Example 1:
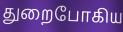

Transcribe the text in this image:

துறைபோகிய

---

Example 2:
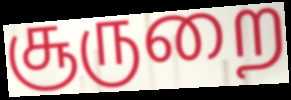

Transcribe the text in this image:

சூருறை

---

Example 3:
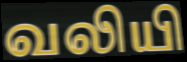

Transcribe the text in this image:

வலியி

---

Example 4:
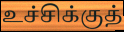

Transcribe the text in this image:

உச்சிக்குத்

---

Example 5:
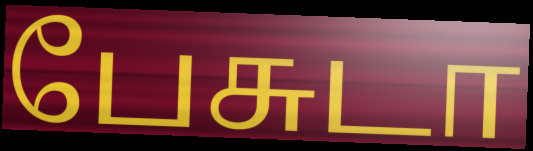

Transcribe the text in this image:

பேசுடா